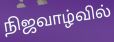
நிஜவாழ்வில்